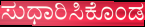
ಸುಧಾರಿಸಿಕೊಂಡ